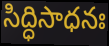
సిద్ధిసాధనః